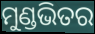
ମୁଣ୍ଡଭିତର